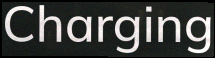
Charging